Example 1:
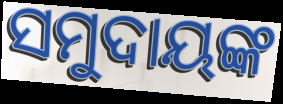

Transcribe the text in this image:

ସମୁଦାୟଙ୍କ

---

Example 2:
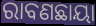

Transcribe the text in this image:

ରାବଣଛାୟା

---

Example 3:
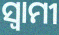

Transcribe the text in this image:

ସ୍ବାମୀ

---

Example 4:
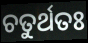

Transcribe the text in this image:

ଚତୁର୍ଥତଃ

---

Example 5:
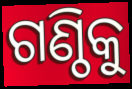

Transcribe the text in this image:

ଗଣ୍ଠିକୁ